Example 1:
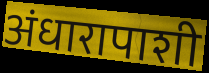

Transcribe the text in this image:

अंधारापाशी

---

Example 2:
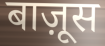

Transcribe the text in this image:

बाज़ूस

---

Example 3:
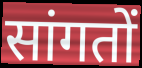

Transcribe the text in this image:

सांगतों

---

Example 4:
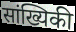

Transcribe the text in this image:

सांख्यिकी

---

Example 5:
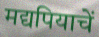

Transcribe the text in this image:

मद्यपियाचें